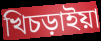
খিচড়াইয়া